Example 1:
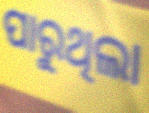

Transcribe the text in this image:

ପାରୁଥିଲା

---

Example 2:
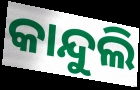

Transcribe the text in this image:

କାନ୍ଦୁଲି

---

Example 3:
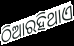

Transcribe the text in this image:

ଠିଆରହିଥାଏ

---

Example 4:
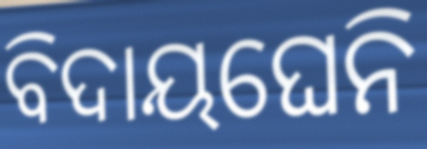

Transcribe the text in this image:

ବିଦାୟଘେନି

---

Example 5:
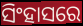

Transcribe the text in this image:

ସିଂହାସରେ